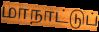
மாநாட்டுப்